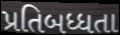
પ્રતિબધ્ધતા